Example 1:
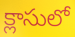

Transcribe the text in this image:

క్లాసులో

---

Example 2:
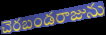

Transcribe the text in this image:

చెరబండరాజును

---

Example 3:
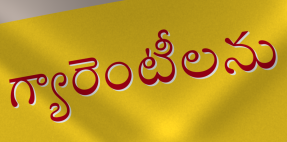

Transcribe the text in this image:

గ్యారెంటీలను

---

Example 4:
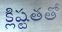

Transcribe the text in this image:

క్లిష్టతతో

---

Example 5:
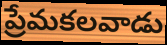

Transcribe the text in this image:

ప్రేమకలవాడు